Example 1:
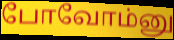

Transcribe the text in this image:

போவோம்னு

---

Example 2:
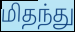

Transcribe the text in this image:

மிதந்து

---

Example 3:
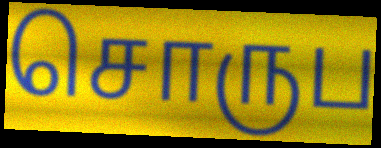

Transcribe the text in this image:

சொருப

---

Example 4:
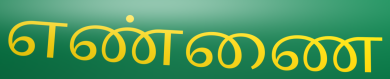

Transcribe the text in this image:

எண்ணை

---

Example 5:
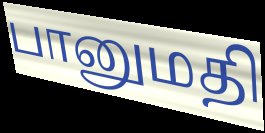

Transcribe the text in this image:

பானுமதி